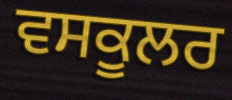
ਵਸਕੂਲਰ